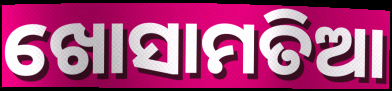
ଖୋସାମତିଆ